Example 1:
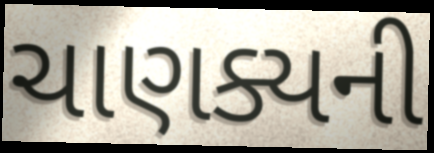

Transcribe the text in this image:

ચાણક્યની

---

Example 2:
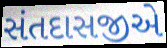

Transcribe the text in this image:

સંતદાસજીએ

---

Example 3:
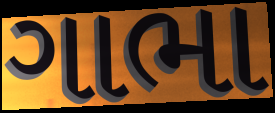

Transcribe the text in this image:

ગાભા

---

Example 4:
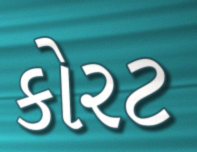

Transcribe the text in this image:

કોરટ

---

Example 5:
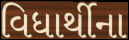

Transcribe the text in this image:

વિધાર્થીના